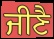
ਜੀਣੈ